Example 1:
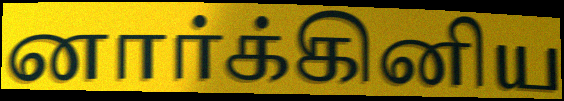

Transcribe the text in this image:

னார்க்கினிய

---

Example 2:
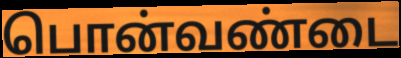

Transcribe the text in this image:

பொன்வண்டை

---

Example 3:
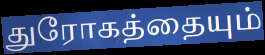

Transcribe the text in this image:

துரோகத்தையும்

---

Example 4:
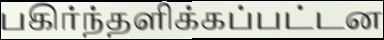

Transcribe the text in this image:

பகிர்ந்தளிக்கப்பட்டன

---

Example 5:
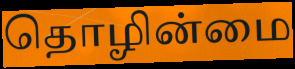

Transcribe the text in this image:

தொழின்மை